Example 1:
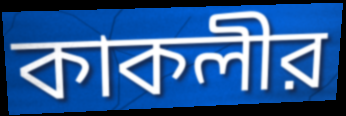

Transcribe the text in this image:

কাকলীর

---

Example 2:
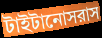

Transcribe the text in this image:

টাইটানোসরাস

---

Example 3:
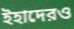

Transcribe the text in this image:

ইহাদেরও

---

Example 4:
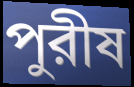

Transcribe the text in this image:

পুরীষ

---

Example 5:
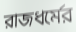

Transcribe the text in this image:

রাজধর্মের